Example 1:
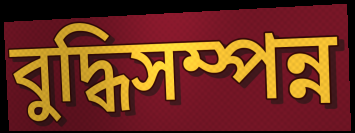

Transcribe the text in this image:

বুদ্ধিসম্পন্ন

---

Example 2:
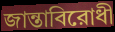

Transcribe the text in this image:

জান্তাবিরোধী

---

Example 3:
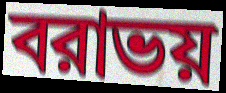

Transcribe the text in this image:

বরাভয়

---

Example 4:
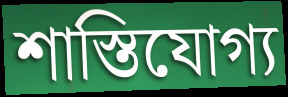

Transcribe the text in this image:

শাস্তিযোগ্য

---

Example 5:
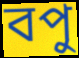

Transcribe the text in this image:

বপু